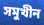
সমুখীন